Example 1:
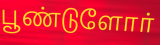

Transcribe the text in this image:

பூண்டுளோர்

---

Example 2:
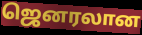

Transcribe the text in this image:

ஜெனரலான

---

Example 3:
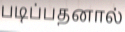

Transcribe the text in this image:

படிப்பதனால்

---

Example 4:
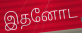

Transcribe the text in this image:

இதனோட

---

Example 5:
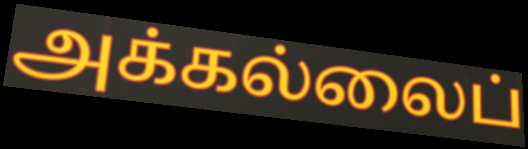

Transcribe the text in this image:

அக்கல்லைப்